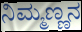
ನಿಮ್ಮಣ್ಣನ